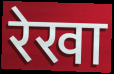
रेखा